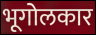
भूगोलकार